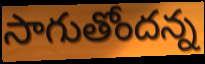
సాగుతోందన్న